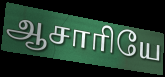
ஆசாரியே